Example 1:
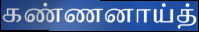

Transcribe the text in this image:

கண்ணனாய்த்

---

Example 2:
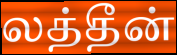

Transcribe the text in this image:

லத்தீன்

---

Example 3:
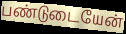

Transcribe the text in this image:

பண்டுடையேன்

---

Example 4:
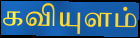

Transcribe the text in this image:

கவியுளம்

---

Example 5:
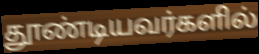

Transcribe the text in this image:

தூண்டியவர்களில்